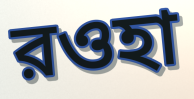
রওহা